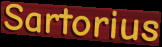
Sartorius